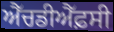
ਐੱਚਡੀਐੱਫ਼ਸੀ